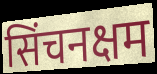
सिंचनक्षम